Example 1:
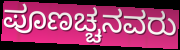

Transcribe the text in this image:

ಪೂಣಚ್ಚನವರು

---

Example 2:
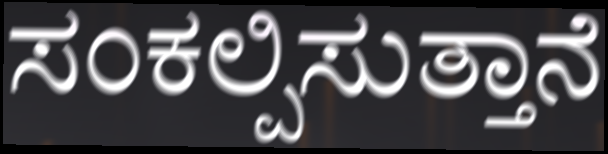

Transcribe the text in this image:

ಸಂಕಲ್ಪಿಸುತ್ತಾನೆ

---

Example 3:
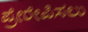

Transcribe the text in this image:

ಪ್ರೇರೇಪಿಸಲು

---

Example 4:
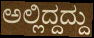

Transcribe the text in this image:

ಅಲ್ಲಿದ್ದದ್ದು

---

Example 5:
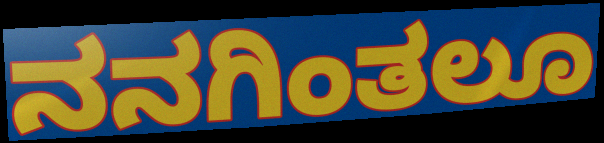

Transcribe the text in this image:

ನನಗಿಂತಲೂ